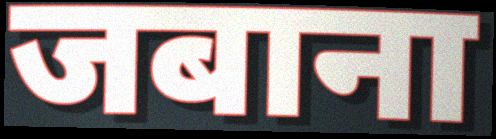
जबाना